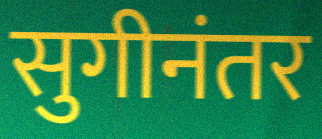
सुगीनंतर